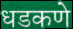
धडकणे